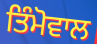
ਤਿੰਮੋਵਾਲ